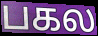
பகல